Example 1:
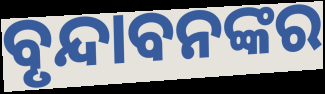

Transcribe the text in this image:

ବୃନ୍ଦାବନଙ୍କର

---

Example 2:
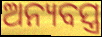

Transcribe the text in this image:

ଅନ୍ୟବସ୍ତ୍ର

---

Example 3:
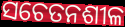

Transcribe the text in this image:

ସଚେତନଶୀଳ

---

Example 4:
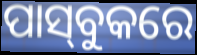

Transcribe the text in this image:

ପାସ୍‌ବୁକରେ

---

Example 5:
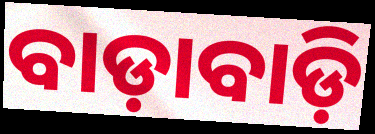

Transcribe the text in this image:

ବାଡ଼ାବାଡ଼ି